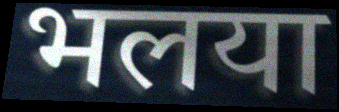
भलया